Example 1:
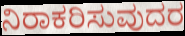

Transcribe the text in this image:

ನಿರಾಕರಿಸುವುದರ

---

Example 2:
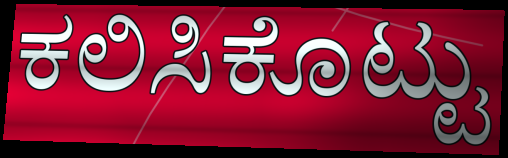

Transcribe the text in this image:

ಕಲಿಸಿಕೊಟ್ಟು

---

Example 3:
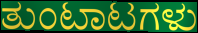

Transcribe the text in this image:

ತುಂಟಾಟಗಳು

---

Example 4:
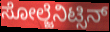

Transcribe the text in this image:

ಸೋಲ್ಜೆನಿಟ್ಸಿನ್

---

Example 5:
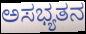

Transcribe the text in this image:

ಅಸಭ್ಯತನ